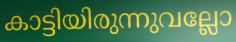
കാട്ടിയിരുന്നുവല്ലോ